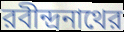
রবীন্দ্রনাথের